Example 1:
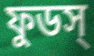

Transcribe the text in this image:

ফুডস্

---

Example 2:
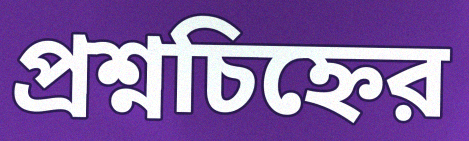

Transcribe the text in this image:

প্রশ্নচিহ্নের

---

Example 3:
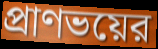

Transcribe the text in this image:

প্রাণভয়ের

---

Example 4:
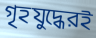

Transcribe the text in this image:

গৃহযুদ্ধেরই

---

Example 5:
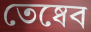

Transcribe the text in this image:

তেষ্বেব